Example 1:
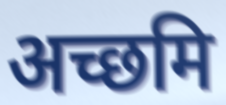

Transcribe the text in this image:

अच्छमि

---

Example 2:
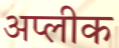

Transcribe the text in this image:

अप्लीक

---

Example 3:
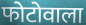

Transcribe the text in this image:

फोटोवाला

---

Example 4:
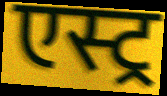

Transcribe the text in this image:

एस्ट्र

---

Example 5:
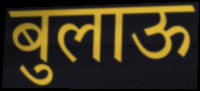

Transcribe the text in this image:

बुलाऊ